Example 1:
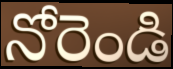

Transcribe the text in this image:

నోరెండి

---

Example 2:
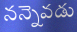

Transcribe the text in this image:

నన్నెవడు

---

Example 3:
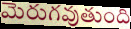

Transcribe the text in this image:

మెరుగవుతుంది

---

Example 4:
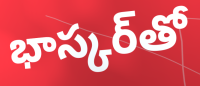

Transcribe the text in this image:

భాస్కర్‌తో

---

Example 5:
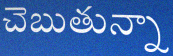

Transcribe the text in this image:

చెబుతున్నా